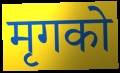
मृगको